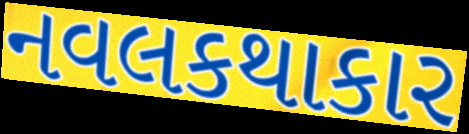
નવલકથાકાર